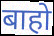
बाहो